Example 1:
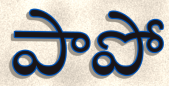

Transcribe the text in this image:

పాపో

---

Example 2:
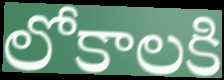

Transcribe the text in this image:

లోకాలకి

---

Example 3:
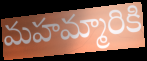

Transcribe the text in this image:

మహమ్మారికి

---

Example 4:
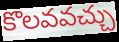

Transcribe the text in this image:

కొలవవచ్చు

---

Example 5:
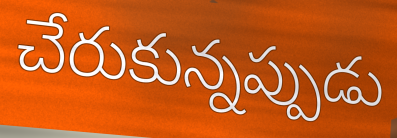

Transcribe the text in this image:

చేరుకున్నప్పుడు